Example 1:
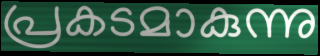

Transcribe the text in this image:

പ്രകടമാകുന്നു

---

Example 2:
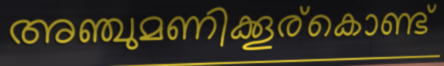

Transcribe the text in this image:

അഞ്ചുമണിക്കൂര്കൊണ്ട്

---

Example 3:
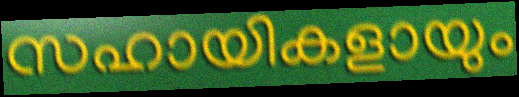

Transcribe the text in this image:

സഹായികളായും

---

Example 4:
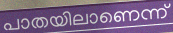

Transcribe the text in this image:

പാതയിലാണെന്ന്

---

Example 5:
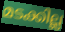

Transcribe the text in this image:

മടക്കില്ല